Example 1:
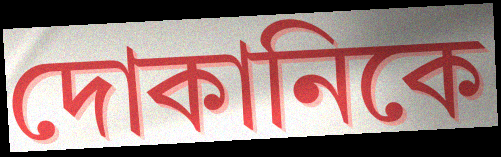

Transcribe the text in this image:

দোকানিকে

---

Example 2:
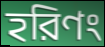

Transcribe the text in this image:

হরিণং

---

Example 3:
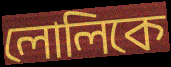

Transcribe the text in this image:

লোলিকে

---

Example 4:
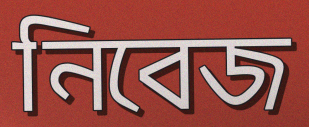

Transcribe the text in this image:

নিবেজ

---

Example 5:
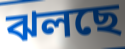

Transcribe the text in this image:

ঝলছে